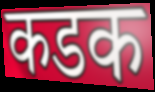
कडक